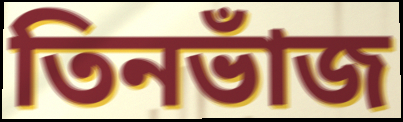
তিনভাঁজ